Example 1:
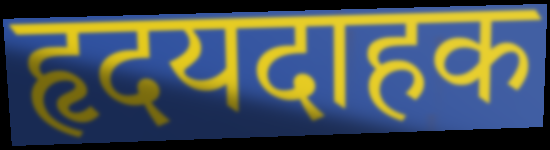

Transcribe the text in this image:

हृदयदाहक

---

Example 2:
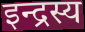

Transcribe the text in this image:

इन्द्रस्य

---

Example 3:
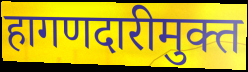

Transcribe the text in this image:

हागणदारीमुक्त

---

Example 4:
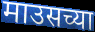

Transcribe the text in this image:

माउसच्या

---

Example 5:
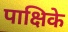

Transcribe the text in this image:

पाक्षिके